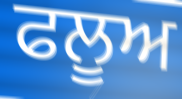
ਫਲੂਅ